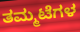
ತಮ್ಮಟೆಗಳ